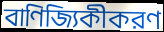
বাণিজ্যিকীকরণ